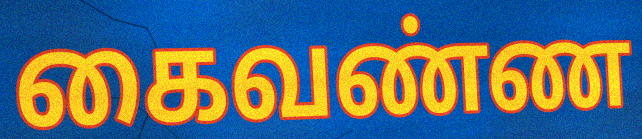
கைவண்ண